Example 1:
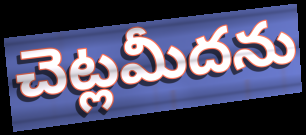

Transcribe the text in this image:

చెట్లమీదను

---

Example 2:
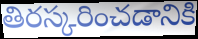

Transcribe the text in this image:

తిరస్కరించడానికి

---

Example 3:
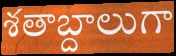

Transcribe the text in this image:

శతాబ్దాలుగా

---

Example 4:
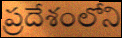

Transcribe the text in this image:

ప్రదేశంలోని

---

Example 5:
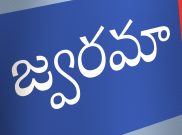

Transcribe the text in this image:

జ్వరమా